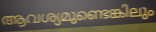
ആവശ്യമുണ്ടെങ്കിലും